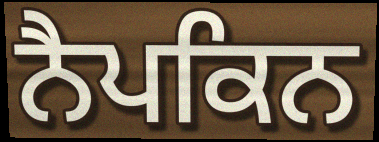
ਨੈਪਕਿਨ